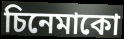
চিনেমাকো